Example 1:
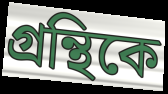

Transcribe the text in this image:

গ্রন্থিকে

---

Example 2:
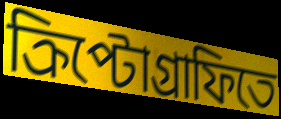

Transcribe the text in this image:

ক্রিপ্টোগ্রাফিতে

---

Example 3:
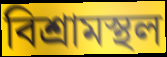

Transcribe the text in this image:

বিশ্রামস্থল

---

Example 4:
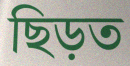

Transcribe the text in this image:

ছিড়ত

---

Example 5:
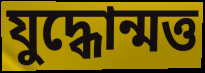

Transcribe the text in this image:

যুদ্ধোন্মত্ত